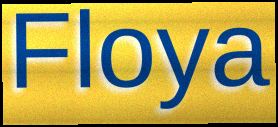
Floya